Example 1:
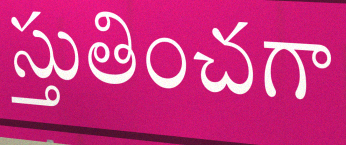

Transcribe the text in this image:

స్తుతించగా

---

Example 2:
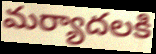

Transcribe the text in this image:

మర్యాదలకి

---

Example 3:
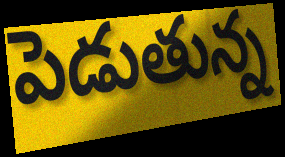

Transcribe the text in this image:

పెడుతున్న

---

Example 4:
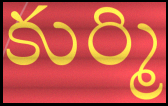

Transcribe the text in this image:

కుర్మి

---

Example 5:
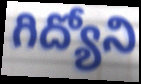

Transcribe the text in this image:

గిద్యోని